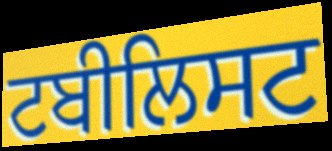
ਟਬੀਲਿਸਟ